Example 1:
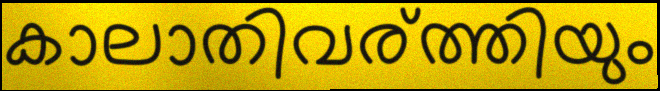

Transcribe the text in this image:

കാലാതിവര്ത്തിയും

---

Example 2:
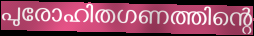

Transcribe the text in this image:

പുരോഹിതഗണത്തിന്റെ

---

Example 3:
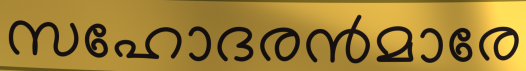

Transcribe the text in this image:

സഹോദരൻമാരേ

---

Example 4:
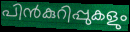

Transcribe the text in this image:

പിൻകുറിപ്പുകളും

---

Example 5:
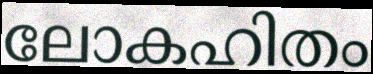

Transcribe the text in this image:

ലോകഹിതം